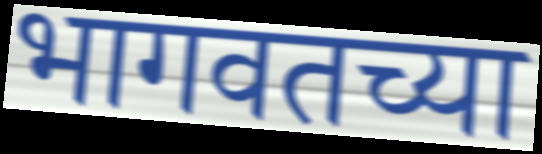
भागवतच्या